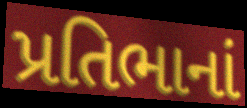
પ્રતિભાનાં